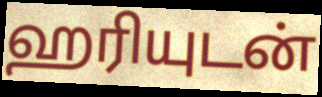
ஹரியுடன்